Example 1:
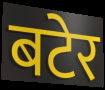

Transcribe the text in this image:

बटेर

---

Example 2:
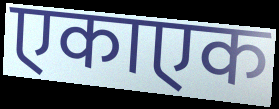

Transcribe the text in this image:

एकाएक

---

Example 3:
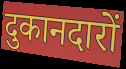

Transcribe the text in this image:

दुकानदारों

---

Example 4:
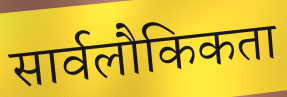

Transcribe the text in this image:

सार्वलौकिकता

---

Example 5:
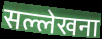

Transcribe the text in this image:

सल्लेखना